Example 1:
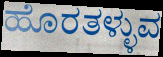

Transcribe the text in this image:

ಹೊರತಳ್ಳುವ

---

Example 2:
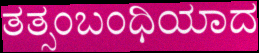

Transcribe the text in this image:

ತತ್ಸಂಬಂಧಿಯಾದ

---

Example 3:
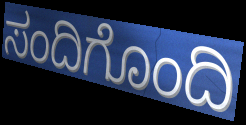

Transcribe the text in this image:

ಸಂದಿಗೊಂದಿ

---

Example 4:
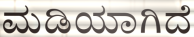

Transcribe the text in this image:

ಮಡಿಯಾಗಿದೆ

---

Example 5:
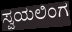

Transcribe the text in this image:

ಸ್ವಯಲಿಂಗ